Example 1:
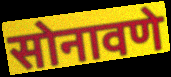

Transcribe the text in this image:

सोनावणे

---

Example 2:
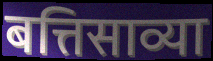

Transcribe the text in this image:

बत्तिसाव्या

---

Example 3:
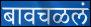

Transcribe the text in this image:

बावचळलं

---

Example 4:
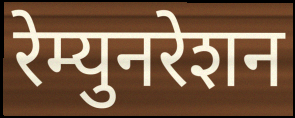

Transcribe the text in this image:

रेम्युनरेशन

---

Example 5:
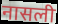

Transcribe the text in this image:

नासली